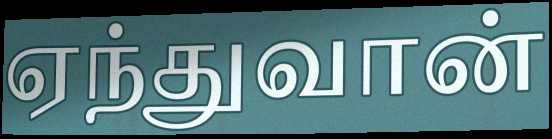
ஏந்துவான்